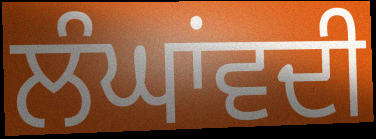
ਲੰਘਾਂਵਦੀ